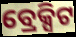
ବ୍ରେକ୍ସିଟ